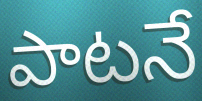
పాటనే